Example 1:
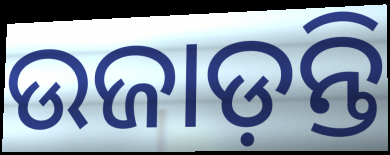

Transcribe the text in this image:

ଉଜାଡ଼ନ୍ତି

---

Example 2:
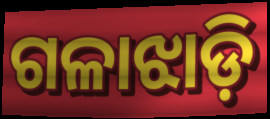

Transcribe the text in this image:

ଗଳାଝାଡ଼ି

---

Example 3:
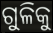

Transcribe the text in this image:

ଗୁଳିକୁ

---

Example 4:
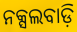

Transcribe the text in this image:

ନକ୍ସଲବାଡ଼ି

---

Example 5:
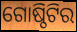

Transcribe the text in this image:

ଗୋଷ୍ଠିଟିର